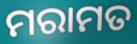
ମରାମତ